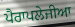
ਪੈਰਾਪਲੇਜੀਆ